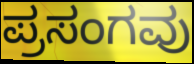
ಪ್ರಸಂಗವು